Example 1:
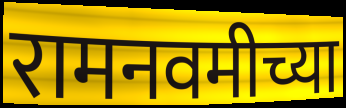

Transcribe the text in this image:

रामनवमीच्या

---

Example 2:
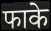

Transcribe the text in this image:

फाके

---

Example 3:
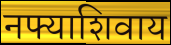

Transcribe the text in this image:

नफ्याशिवाय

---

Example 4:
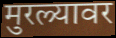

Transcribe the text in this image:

मुरल्यावर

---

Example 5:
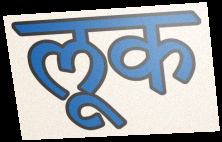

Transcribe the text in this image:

लूक